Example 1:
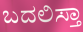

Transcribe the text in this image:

ಬದಲಿಸ್ತಾ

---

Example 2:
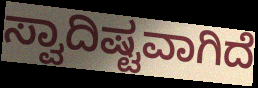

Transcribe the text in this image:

ಸ್ವಾದಿಷ್ಟವಾಗಿದೆ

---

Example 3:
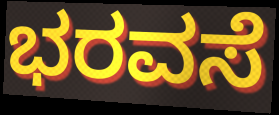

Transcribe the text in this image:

ಭರವಸೆ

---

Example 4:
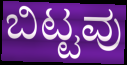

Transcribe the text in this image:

ಬಿಟ್ಟವು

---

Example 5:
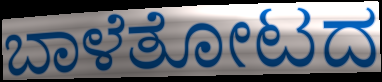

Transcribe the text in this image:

ಬಾಳೆತೋಟದ